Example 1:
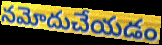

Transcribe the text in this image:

నమోదుచేయడం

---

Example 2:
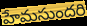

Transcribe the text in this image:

హేమసుందరి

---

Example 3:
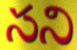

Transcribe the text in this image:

సని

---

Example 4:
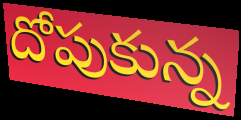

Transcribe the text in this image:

దోపుకున్న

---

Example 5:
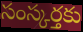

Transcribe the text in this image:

సంస్కర్తకు